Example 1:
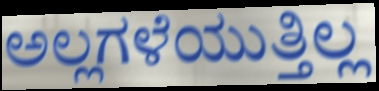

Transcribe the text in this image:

ಅಲ್ಲಗಳೆಯುತ್ತಿಲ್ಲ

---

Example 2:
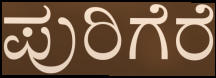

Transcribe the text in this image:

ಪುರಿಗೆರೆ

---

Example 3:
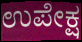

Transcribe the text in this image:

ಉಪೇಕ್ಷ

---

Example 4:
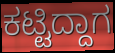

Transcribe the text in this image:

ಕಟ್ಟಿದ್ದಾಗ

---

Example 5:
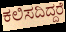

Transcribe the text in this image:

ಕಲಿಸದಿದ್ದರೆ